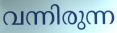
വന്നിരുന്ന